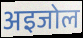
अइजोल